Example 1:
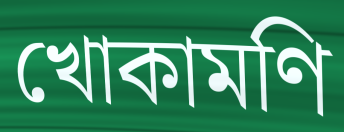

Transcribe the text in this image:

খোকামণি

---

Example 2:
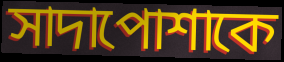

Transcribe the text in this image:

সাদাপোশাকে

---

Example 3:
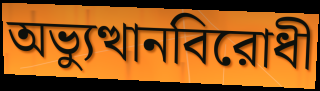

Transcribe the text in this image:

অভ্যুত্থানবিরোধী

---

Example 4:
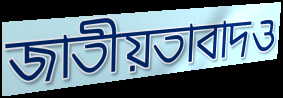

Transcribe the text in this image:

জাতীয়তাবাদও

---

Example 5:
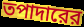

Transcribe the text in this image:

তপাদারের